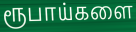
ரூபாய்களை